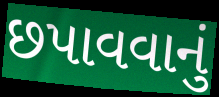
છપાવવાનું